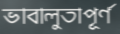
ভাবালুতাপূর্ণ